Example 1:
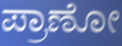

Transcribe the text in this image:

ಪ್ರಾಣೋ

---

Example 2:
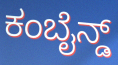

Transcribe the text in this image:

ಕಂಬೈನ್ಡ್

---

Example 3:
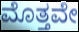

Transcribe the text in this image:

ಮೊತ್ತವೇ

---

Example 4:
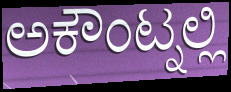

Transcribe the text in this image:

ಅಕೌಂಟ್ನಲ್ಲಿ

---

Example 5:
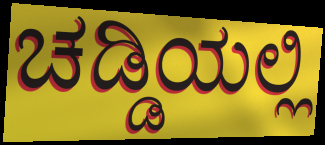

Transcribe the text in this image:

ಚಡ್ಡಿಯಲ್ಲಿ